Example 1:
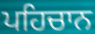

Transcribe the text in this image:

ਪਹਿਚਾਨ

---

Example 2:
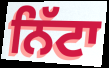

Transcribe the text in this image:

ਨਿੱਟਾ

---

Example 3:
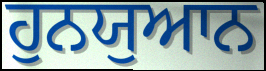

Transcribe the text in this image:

ਹੁਨਯੁਆਨ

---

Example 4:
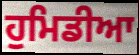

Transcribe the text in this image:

ਹੁਮਿਡੀਆ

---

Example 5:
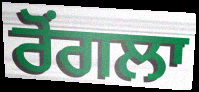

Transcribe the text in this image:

ਰੋਂਗਲਾ